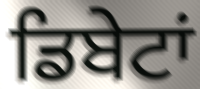
ਡਿਬੇਟਾਂ